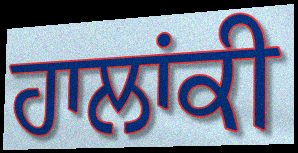
ਹਾਲਾਂਕੀ